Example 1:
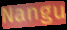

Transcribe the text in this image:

Nangu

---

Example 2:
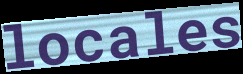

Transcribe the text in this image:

locales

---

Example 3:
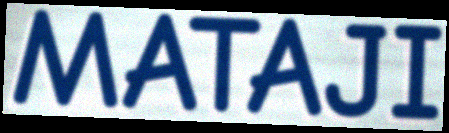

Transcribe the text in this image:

MATAJI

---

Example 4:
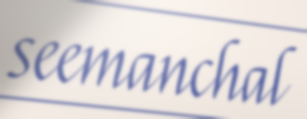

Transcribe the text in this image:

seemanchal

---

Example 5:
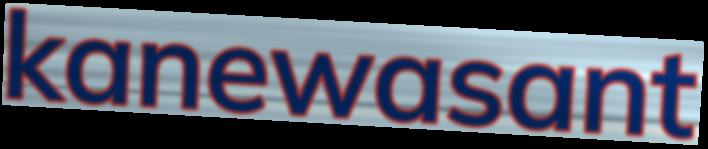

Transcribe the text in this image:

kanewasant